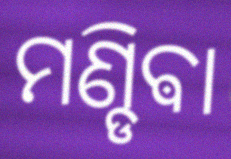
ମଣ୍ଡିଵା